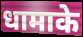
धामाके